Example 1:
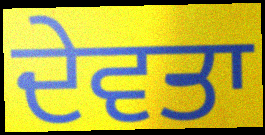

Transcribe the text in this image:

ਦੇਵਤਾ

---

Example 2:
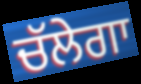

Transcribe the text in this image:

ਚੱਲੇਗਾ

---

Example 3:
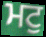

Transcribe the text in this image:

ਮਟੁ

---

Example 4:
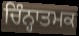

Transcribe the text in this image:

ਚਿੰਨ੍ਹਾਤਮਕ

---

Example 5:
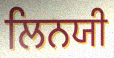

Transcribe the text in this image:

ਲਿਨਯੀ